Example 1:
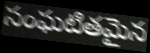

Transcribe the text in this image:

సంఘటితమైన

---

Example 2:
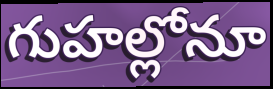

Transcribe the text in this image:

గుహల్లోనూ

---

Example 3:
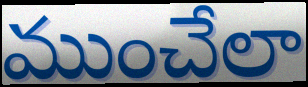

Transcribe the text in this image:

ముంచేలా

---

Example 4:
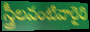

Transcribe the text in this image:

స్త్రీలవంటివారైరి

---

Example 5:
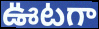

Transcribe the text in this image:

ఊటగా